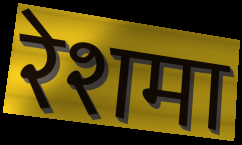
रेशमा